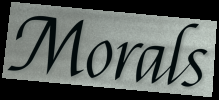
Morals